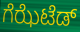
ಗೆಝೆಟೆಡ್